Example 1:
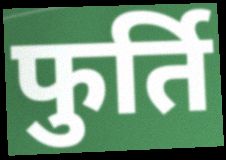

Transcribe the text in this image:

फुर्ति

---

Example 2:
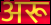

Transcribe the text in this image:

अरू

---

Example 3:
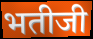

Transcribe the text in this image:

भतीजी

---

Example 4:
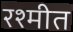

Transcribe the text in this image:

रश्मीत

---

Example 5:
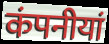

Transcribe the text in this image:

कंपनीयां